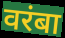
वरंबा